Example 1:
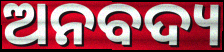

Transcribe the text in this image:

ଅନବଦ୍ୟ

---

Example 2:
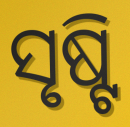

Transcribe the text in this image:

ସୃଷ୍ଟି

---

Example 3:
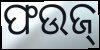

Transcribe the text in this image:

ଫଉଜ୍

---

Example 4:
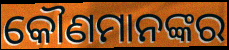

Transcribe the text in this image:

କୌଣମାନଙ୍କର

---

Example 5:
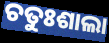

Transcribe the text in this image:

ଚତୁଃଶାଲା